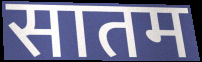
सातम